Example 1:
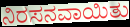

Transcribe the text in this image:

ನಿರಸನವಾಯಿತು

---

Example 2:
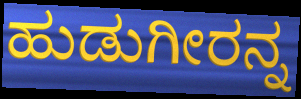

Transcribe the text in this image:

ಹುಡುಗೀರನ್ನ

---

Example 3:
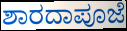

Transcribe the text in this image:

ಶಾರದಾಪೂಜೆ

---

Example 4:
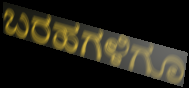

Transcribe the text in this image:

ಬರಹಗಳಿಗೂ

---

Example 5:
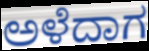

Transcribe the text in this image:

ಅಳೆದಾಗ